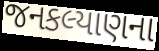
જનકલ્યાણના